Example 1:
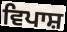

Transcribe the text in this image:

ਵਿਪਾਸ਼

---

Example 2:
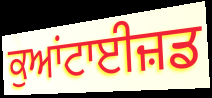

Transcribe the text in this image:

ਕੁਆਂਟਾਈਜ਼ਡ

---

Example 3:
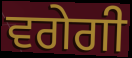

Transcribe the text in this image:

ਵਗੇਗੀ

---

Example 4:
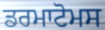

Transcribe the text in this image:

ਡਰਮਾਟੋਮਸ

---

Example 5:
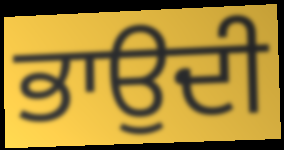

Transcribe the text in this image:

ਭਾਉਦੀ